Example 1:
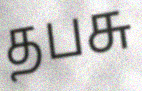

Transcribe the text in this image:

தபசு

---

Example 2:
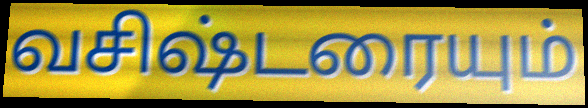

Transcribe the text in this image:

வசிஷ்டரையும்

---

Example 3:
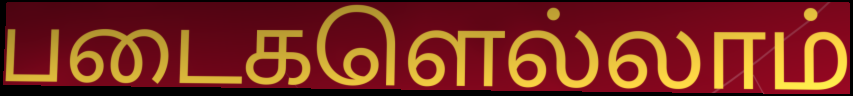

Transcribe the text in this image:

படைகளெல்லாம்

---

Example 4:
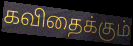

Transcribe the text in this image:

கவிதைக்கும்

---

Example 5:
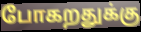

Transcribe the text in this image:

போகறதுக்கு